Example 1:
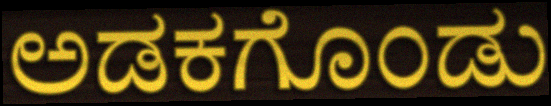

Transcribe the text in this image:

ಅಡಕಗೊಂಡು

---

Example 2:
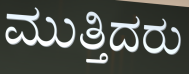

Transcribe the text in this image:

ಮುತ್ತಿದರು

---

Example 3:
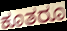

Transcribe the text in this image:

ಕೂತರೂ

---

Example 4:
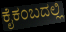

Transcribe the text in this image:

ಕೈಕಂಬದಲ್ಲಿ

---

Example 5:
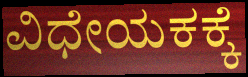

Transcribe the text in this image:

ವಿಧೇಯಕಕ್ಕೆ